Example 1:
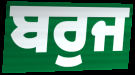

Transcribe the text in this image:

ਬਰੁਜ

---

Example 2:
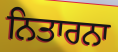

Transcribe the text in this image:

ਨਿਤਾਰਨਾ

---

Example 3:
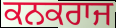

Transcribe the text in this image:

ਕਨਕਰਾਜ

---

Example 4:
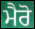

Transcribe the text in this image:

ਮੈਰੋ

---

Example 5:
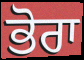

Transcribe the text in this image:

ਭੋਰਾ